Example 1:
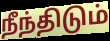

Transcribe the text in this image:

நீந்திடும்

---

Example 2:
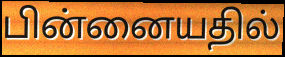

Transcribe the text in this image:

பின்னையதில்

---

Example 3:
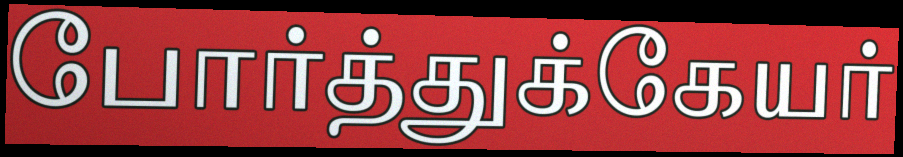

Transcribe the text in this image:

போர்த்துக்கேயர்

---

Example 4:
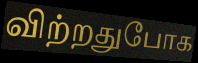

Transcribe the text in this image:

விற்றதுபோக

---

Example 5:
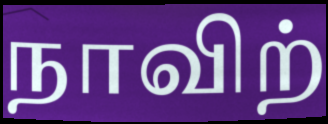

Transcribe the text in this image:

நாவிற்